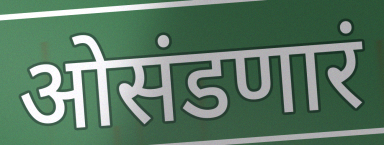
ओसंडणारं